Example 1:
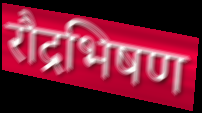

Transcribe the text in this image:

रौद्रभिषण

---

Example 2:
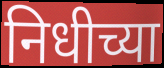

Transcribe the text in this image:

निधीच्या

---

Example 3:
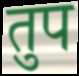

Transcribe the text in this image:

तुप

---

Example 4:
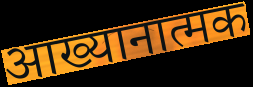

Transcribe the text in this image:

आख्यानात्मक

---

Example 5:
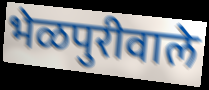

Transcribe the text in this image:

भेळपुरीवाले